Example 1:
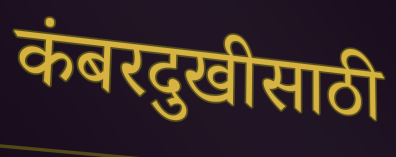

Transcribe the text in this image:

कंबरदुखीसाठी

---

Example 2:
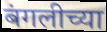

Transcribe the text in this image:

बंगलीच्या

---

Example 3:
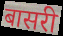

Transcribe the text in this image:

बासरी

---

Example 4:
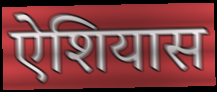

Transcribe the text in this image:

ऐशियास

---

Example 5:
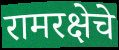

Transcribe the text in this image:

रामरक्षेचे